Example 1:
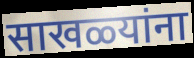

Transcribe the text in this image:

साखळ्यांना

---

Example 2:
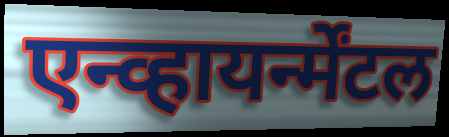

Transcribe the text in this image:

एन्व्हायर्न्मेंटल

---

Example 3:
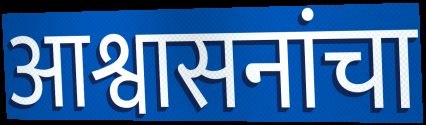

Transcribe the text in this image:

आश्वासनांचा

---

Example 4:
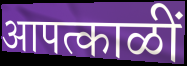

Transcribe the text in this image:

आपत्काळीं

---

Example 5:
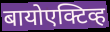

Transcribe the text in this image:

बायोएक्टिव्ह